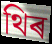
থিৰ